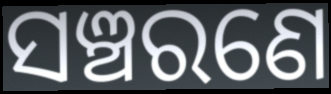
ସଞ୍ଚରଣେ